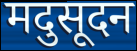
मदुसूदन